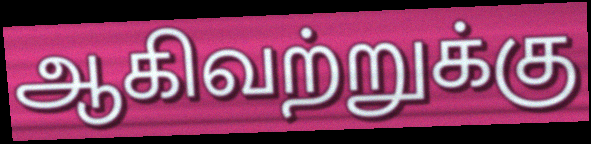
ஆகிவற்றுக்கு